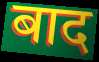
बाद